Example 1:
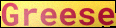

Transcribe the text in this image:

Greese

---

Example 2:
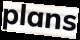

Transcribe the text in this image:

plans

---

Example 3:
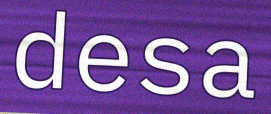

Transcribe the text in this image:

desa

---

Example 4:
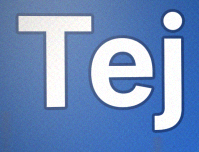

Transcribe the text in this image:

Tej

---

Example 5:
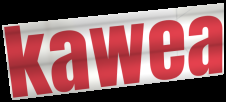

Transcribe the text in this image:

kawea